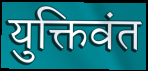
युक्तिवंत